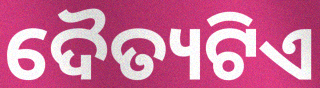
ଦୈତ୍ୟଟିଏ